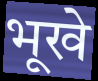
भूखे